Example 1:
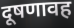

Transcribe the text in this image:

दूषणावह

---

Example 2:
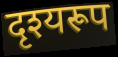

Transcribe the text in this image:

दृश्यरूप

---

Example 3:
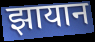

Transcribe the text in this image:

झायान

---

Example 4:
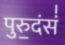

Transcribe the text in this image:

पुरु॒दंसं॑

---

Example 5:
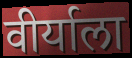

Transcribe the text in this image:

वीर्याला